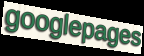
googlepages